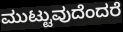
ಮುಟ್ಟುವುದೆಂದರೆ